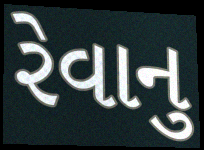
રેવાનુ